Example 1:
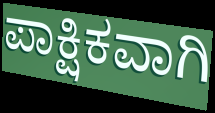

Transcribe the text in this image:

ಪಾಕ್ಷಿಕವಾಗಿ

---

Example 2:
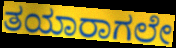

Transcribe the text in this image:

ತಯಾರಾಗಲೇ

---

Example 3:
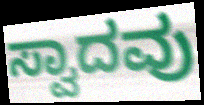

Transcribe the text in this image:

ಸ್ವಾದವು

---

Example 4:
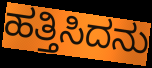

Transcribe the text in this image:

ಹತ್ತಿಸಿದನು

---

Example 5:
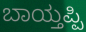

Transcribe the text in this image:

ಬಾಯ್ತಪ್ಪಿ